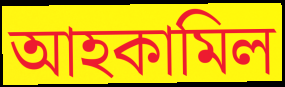
আহকামিল